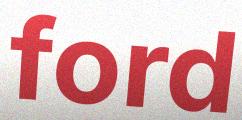
ford